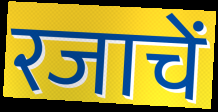
रजाचें